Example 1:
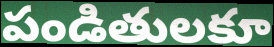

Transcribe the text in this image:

పండితులకూ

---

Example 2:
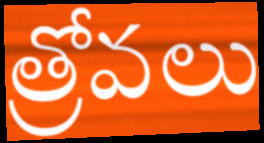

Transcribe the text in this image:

త్రోవలు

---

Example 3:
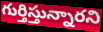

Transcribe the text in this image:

గుర్తిస్తున్నారని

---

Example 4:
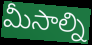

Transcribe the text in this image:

మీసాల్ని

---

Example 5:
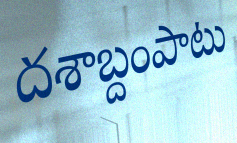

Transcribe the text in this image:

దశాబ్దంపాటు